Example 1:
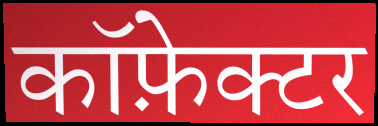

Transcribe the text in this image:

कॉफ़ेक्टर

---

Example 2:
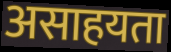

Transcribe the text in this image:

असाहयता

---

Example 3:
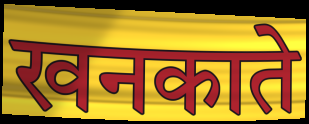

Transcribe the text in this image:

खनकाते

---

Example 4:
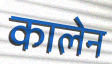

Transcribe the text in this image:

कालेन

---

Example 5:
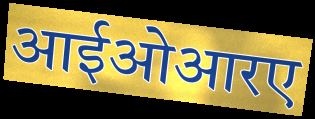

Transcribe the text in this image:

आईओआरए